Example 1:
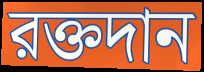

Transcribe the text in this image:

রক্তদান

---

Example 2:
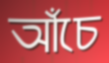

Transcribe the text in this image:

আঁচে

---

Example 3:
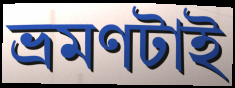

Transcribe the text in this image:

ভ্রমণটাই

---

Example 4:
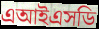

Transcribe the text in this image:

এআইএসডি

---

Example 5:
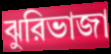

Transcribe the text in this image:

ঝুরিভাজা